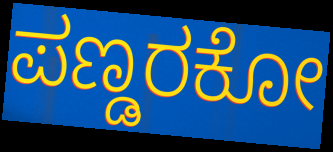
ಪಣ್ಡರಕೋ